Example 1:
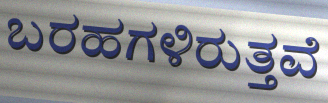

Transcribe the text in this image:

ಬರಹಗಳಿರುತ್ತವೆ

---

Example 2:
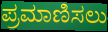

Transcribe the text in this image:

ಪ್ರಮಾಣಿಸಲು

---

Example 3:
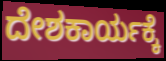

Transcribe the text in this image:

ದೇಶಕಾರ್ಯಕ್ಕೆ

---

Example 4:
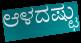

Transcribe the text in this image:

ಆಳದಷ್ಟು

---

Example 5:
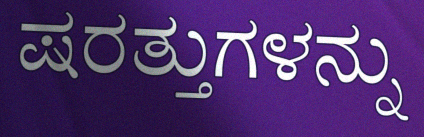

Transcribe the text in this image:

ಷರತ್ತುಗಳನ್ನು